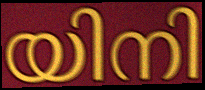
യിനി